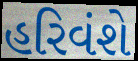
હરિવંશે